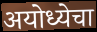
अयोध्येचा